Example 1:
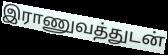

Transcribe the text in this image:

இராணுவத்துடன்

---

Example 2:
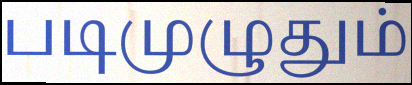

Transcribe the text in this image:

படிமுழுதும்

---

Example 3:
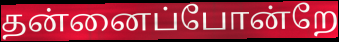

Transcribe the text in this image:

தன்னைப்போன்றே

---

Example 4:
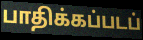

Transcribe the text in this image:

பாதிக்கப்படப்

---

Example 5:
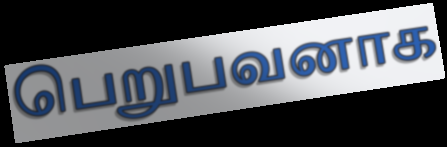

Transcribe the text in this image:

பெறுபவனாக